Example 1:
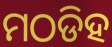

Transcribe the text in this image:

ମଠଡିହ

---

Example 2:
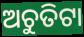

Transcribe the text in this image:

ଅଚୁତିଟା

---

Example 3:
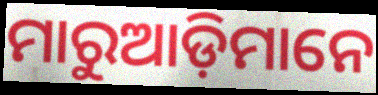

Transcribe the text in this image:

ମାରୁଆଡ଼ିମାନେ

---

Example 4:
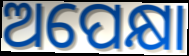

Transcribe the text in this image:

ଅପେକ୍ଷା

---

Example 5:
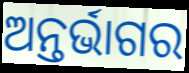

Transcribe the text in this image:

ଅନ୍ତର୍ଭାଗର